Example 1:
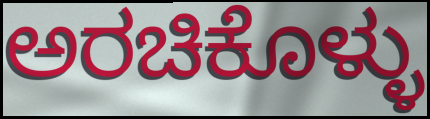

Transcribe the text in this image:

ಅರಚಿಕೊಳ್ಳು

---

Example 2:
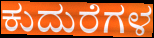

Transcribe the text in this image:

ಕುದುರೆಗಳ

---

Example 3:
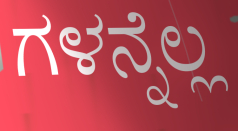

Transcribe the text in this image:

ಗಳನ್ನೆಲ್ಲ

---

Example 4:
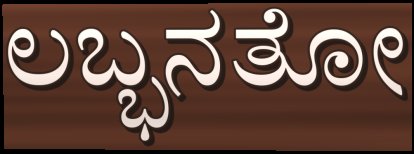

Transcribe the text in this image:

ಲಬ್ಭನತೋ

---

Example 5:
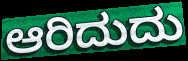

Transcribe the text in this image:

ಆರಿದುದು